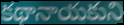
కథానాయకుని